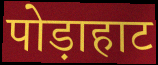
पोड़ाहाट